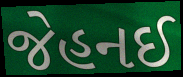
જેહનઈ